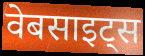
वेबसाइट्स